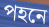
পহনে